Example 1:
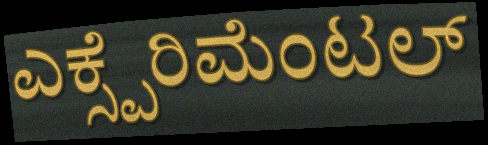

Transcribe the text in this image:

ಎಕ್ಸ್ಪೆರಿಮೆಂಟಲ್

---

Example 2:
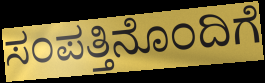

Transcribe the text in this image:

ಸಂಪತ್ತಿನೊಂದಿಗೆ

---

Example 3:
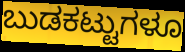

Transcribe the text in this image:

ಬುಡಕಟ್ಟುಗಳೂ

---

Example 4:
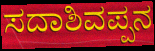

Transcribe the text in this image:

ಸದಾಶಿವಪ್ಪನ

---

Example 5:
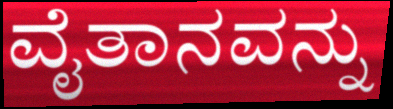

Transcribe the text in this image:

ವೈತಾನವನ್ನು